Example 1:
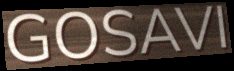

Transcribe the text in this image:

GOSAVI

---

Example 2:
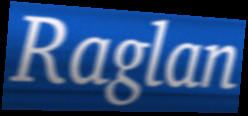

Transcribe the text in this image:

Raglan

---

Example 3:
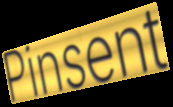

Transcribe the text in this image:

Pinsent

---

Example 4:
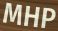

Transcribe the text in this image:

MHP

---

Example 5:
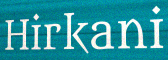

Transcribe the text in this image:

Hirkani